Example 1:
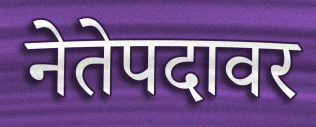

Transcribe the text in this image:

नेतेपदावर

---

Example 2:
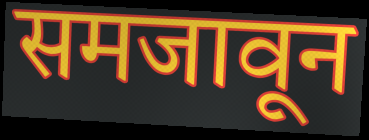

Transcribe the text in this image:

समजावून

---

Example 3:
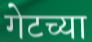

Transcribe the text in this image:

गेटच्या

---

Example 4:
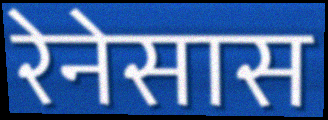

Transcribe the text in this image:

रेनेसास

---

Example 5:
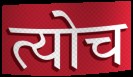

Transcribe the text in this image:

त्योच